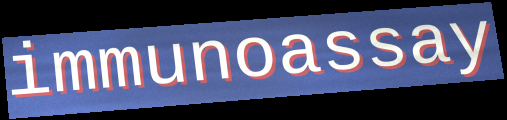
immunoassay